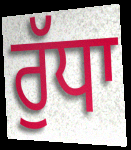
ਰੁੱਧਾ